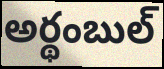
అర్థంబుల్